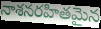
నాశనరహితమైన